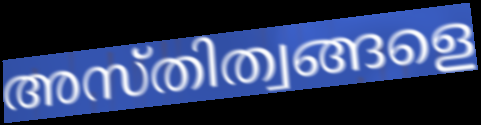
അസ്തിത്വങ്ങളെ